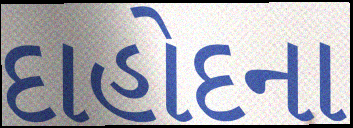
દાહોદના